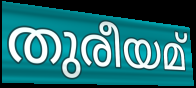
തുരീയമ്